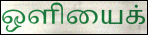
ஒளியைக்